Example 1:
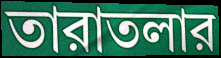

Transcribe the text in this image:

তারাতলার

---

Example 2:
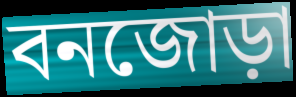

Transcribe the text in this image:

বনজোড়া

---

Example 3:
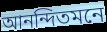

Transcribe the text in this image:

আনন্দিতমনে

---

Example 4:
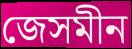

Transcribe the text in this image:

জেসমীন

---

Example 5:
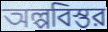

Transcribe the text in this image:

অল্পবিস্তর